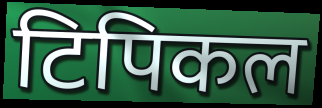
टिपिकल